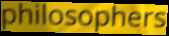
philosophers